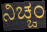
ನಿಚ್ಚಂ